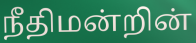
நீதிமன்றின்